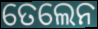
ତେଲେନ